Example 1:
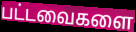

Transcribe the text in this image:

பட்டவைகளை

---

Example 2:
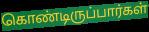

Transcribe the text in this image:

கொண்டிருப்பார்கள்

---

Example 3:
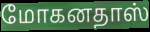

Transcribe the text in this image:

மோகனதாஸ்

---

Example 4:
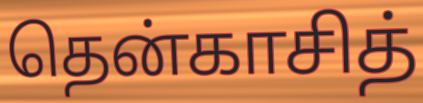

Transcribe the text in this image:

தென்காசித்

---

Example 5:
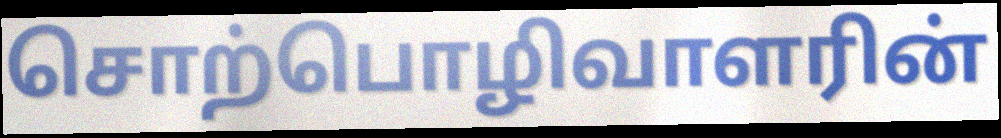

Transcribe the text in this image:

சொற்பொழிவாளரின்